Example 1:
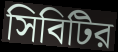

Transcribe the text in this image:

সিবিটির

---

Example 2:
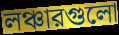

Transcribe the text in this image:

লঞ্চারগুলো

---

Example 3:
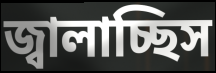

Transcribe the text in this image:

জ্বালাচ্ছিস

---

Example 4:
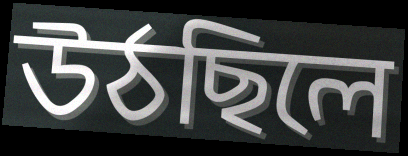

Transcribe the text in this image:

উঠছিলে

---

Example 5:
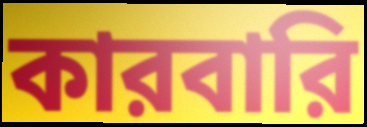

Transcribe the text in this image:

কারবারি